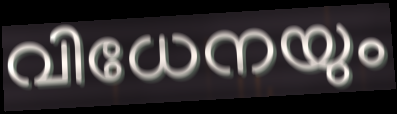
വിധേനയും